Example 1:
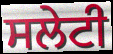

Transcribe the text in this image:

ਸਲੇਟੀ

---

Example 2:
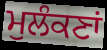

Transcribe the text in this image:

ਮੁਲੰਕਣਾਂ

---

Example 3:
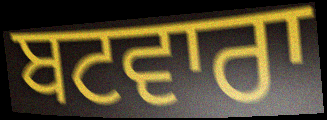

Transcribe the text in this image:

ਬਟਵਾਰਾ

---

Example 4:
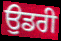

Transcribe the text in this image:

ਉਡਰੀ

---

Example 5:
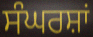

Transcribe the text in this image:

ਸੰਘਰਸ਼ਾਂ